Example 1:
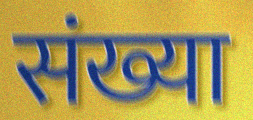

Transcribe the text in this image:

संख्या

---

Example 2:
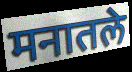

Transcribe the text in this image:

मनातले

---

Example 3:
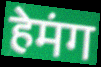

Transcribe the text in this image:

हेमंग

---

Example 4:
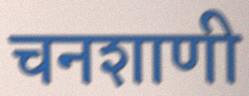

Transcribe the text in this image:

चनशाणी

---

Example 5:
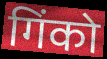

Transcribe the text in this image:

गिंको